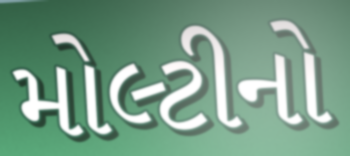
મોલ્ટીનો